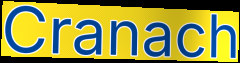
Cranach